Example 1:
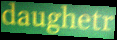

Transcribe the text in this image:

daughetr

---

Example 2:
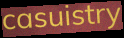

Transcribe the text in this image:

casuistry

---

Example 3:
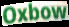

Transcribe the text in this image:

Oxbow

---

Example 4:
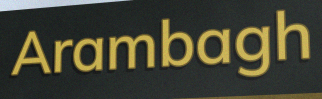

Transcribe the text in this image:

Arambagh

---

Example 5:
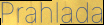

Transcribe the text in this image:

Prahlada